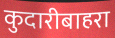
कुदारीबाहरा